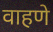
वाहणे